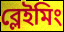
ব্লেইমিং